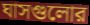
ঘাসগুলোর